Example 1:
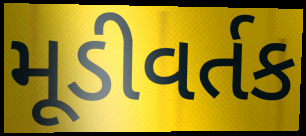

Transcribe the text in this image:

મૂડીવર્તક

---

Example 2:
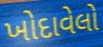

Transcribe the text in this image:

ખોદાવેલો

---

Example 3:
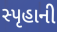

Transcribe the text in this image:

સ્પૃહાની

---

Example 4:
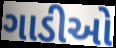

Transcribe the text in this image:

ગાડીઓ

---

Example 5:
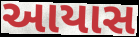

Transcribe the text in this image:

આયાસ